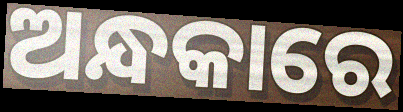
ଅନ୍ଧକାରେ